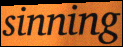
sinning